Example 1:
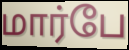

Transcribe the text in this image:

மார்பே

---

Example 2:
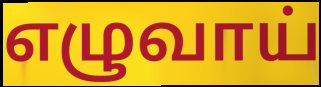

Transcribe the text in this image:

எழுவாய்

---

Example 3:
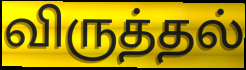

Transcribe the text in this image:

விருத்தல்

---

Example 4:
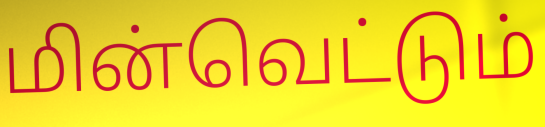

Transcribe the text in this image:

மின்வெட்டும்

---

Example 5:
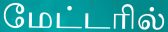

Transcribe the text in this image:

மேட்டரில்